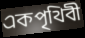
একপৃথিবী